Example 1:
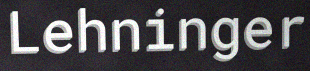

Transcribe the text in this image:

Lehninger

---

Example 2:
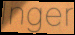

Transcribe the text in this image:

Inger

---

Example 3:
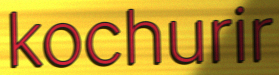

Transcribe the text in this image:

kochurir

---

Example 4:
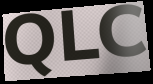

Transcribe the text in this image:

QLC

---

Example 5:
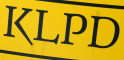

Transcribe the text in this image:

KLPD